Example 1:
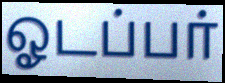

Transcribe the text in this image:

ஓடப்பர்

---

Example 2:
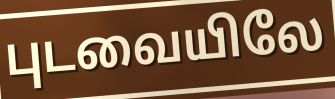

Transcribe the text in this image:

புடவையிலே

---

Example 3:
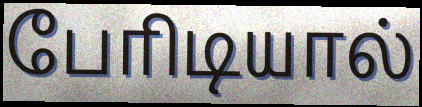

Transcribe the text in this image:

பேரிடியால்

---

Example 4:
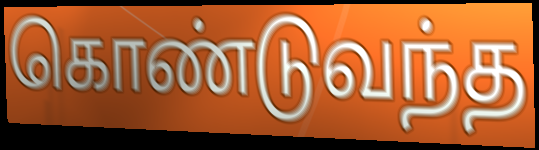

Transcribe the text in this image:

கொண்டுவந்த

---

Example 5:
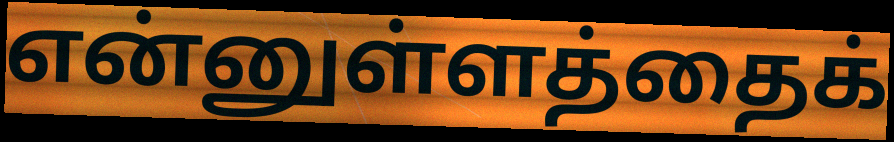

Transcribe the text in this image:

என்னுள்ளத்தைக்